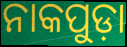
ନାକପୁଡ଼ା